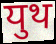
युथ